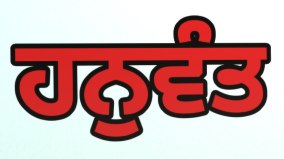
ਹਨੁਵੰਤ